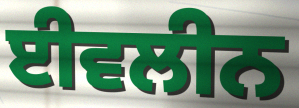
ਈਵਲੀਨ